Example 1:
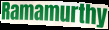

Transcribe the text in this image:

Ramamurthy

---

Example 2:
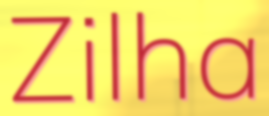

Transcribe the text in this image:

Zilha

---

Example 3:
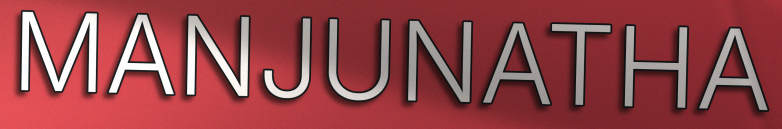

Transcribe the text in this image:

MANJUNATHA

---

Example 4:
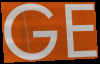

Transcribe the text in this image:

GE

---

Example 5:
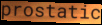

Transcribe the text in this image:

prostatic